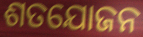
ଶତଯୋଜନ